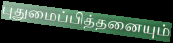
புதுமைப்பித்தனையும்